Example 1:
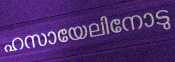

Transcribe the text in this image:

ഹസായേലിനോടു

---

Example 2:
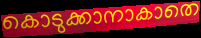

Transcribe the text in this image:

കൊടുക്കാനാകാതെ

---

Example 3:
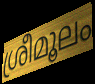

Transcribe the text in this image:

ശ്രീമൂലം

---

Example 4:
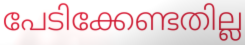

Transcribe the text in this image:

പേടിക്കേണ്ടതില്ല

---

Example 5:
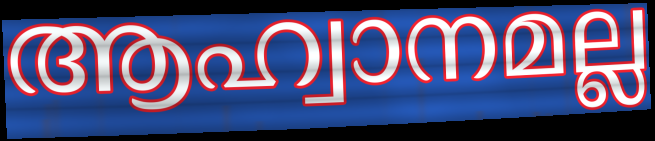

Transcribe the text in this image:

ആഹ്വാനമല്ല